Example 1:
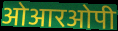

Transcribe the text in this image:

ओआरओपी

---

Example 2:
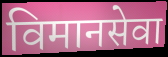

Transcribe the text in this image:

विमानसेवा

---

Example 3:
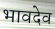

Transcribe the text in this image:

भावदेव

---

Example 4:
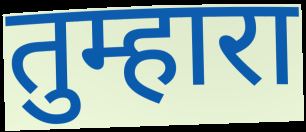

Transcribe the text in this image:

तुम्हारा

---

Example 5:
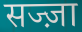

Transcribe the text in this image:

सज्ज़ा